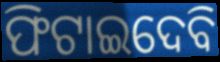
ଫିଟାଇଦେବି